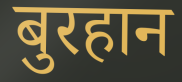
बुरहान